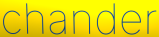
chander